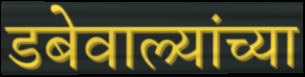
डबेवाल्यांच्या